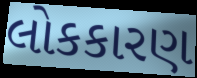
લોકકારણ